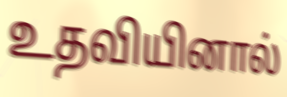
உதவியினால்